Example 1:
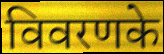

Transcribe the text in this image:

विवरणके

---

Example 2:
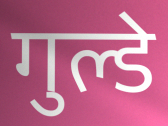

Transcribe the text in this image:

गुल्डे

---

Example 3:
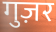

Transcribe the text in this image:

गुज़र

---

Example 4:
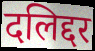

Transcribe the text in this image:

दलिद्दर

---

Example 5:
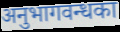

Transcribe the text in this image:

अनुभागवन्धका